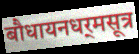
बौधायनधर्मसूत्र